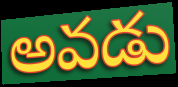
అవడు